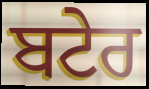
ਬਟੇਰ